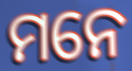
ମନେ